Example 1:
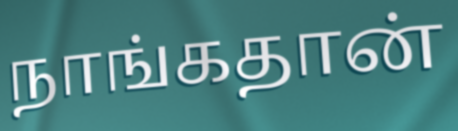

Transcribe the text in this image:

நாங்கதான்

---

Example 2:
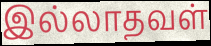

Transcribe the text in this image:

இல்லாதவள்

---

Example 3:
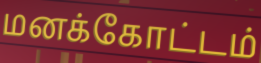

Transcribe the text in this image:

மனக்கோட்டம்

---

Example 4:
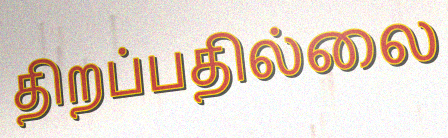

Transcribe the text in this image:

திறப்பதில்லை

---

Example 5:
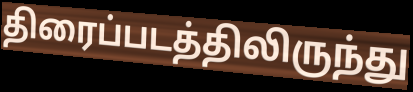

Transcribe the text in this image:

திரைப்படத்திலிருந்து